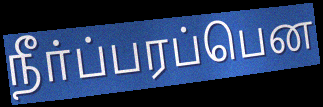
நீர்ப்பரப்பென